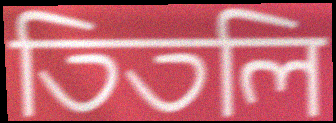
তিতলি